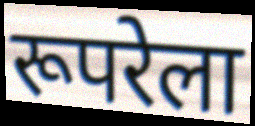
रूपरेला